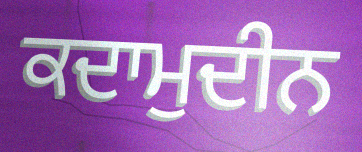
ਕਦਾਮੁਦੀਨ